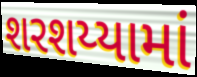
શરશય્યામાં